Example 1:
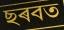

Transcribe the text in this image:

ছৰবত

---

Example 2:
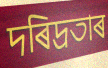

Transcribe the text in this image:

দৰিদ্ৰতাৰ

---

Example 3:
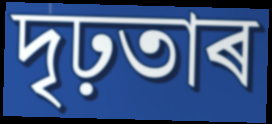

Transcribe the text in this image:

দৃঢ়তাৰ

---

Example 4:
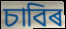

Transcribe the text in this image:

চাবিৰ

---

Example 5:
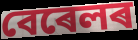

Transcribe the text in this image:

বেৰেলৰ